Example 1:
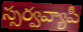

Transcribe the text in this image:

స్సర్వవ్యాపీ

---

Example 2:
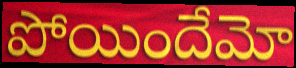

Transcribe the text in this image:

పోయిందేమో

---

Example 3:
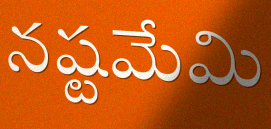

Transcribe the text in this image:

నష్టమేమి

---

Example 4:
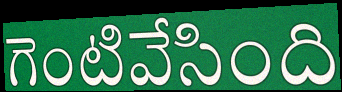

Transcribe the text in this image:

గెంటివేసింది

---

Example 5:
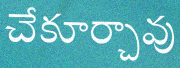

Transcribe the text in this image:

చేకూర్చావు